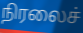
நிரலைச்